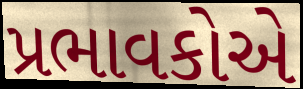
પ્રભાવકોએ